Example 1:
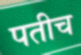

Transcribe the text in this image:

पतीच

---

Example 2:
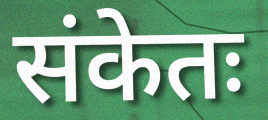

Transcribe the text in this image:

संकेतः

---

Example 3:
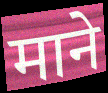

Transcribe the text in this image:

माने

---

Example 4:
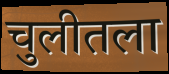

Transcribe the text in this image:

चुलीतला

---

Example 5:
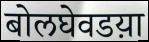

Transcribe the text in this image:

बोलघेवडय़ा